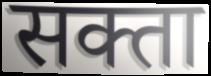
सक्ता